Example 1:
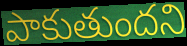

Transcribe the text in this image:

పాకుతుందని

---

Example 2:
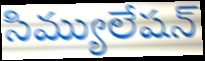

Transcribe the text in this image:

సిమ్యులేషన్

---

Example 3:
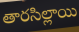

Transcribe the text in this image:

తారసిల్లాయి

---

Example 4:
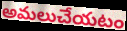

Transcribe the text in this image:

అమలుచేయటం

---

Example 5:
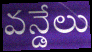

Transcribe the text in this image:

వన్డేలు